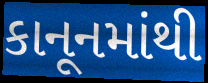
કાનૂનમાંથી